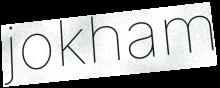
jokham